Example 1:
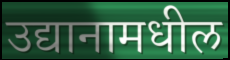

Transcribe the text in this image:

उद्यानामधील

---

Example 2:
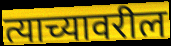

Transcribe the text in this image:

त्याच्यावरील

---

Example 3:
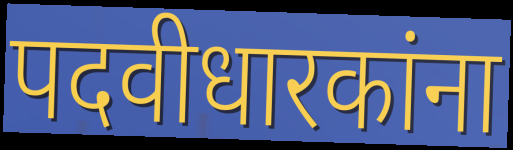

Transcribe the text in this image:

पदवीधारकांना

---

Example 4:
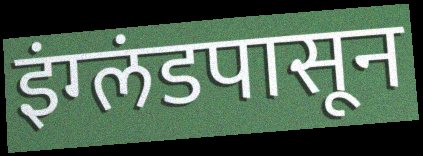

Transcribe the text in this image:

इंग्लंडपासून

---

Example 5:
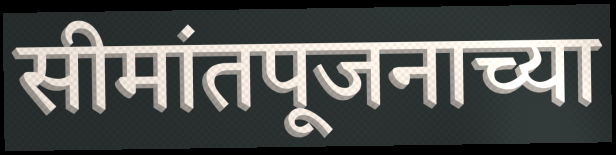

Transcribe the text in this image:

सीमांतपूजनाच्या